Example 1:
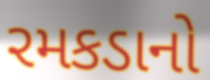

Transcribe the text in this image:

રમકડાનો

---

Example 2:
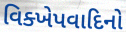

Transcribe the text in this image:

વિક્ખેપવાદિનો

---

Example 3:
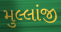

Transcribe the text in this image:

મુલ્લાંજી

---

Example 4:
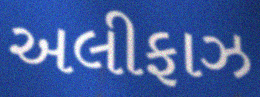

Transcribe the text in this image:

અલીફાઝ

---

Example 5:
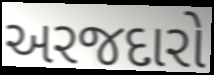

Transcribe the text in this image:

અરજદારો